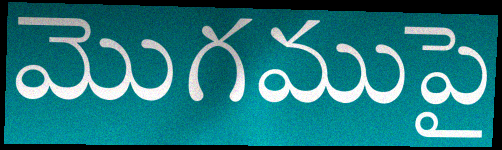
మొగముపై